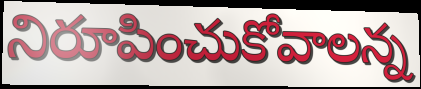
నిరూపించుకోవాలన్న